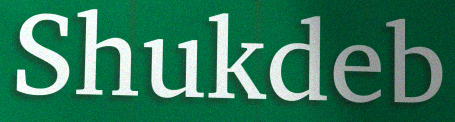
Shukdeb